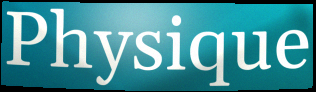
Physique